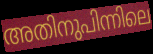
അതിനുപിന്നിലെ